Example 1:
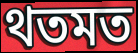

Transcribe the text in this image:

থতমত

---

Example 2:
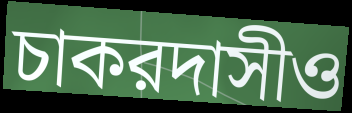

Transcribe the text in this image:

চাকরদাসীও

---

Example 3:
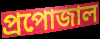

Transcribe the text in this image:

প্রপোজাল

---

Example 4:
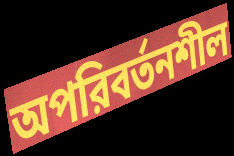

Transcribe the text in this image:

অপরিবর্তনশীল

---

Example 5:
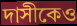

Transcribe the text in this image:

দাসীকেও